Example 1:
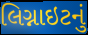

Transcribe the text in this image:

લિગ્નાઇટનું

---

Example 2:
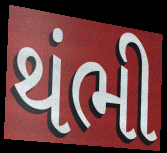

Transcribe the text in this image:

થંભી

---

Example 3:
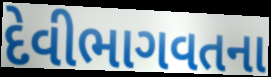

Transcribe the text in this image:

દેવીભાગવતના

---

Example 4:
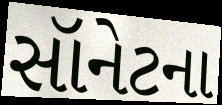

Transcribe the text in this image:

સૉનેટના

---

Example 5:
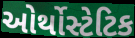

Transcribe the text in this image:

ઓર્થોસ્ટેટિક